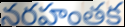
నరహంతక